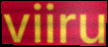
viiru